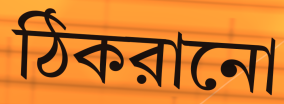
ঠিকরানো